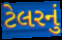
ટેલરનું